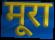
मूरा